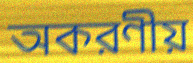
অকরণীয়